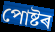
পোষ্টৰ